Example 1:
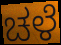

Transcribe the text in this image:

ಚಳೆ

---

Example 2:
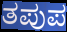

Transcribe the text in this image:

ತಪುಪ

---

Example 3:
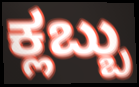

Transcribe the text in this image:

ಕ್ಲಬ್ಬು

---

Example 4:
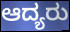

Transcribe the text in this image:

ಆದ್ಯರು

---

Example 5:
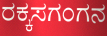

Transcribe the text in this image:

ರಕ್ಕಸಗಂಗನ